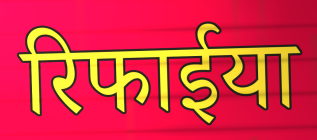
रिफाईया